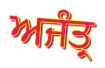
ਅਜੰਤ੍ਰ